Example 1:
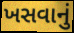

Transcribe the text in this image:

ખસવાનું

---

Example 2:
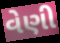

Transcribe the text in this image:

વેણી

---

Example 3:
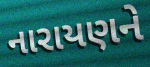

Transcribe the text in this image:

નારાયણને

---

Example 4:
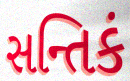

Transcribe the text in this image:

સન્તિકં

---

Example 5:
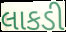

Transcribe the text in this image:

લાકડી